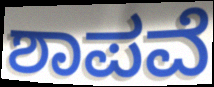
ಶಾಪವೆ